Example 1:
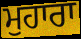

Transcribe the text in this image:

ਮੁਹਾਰਾ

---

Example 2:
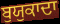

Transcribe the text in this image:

ਬੁਯੁਕਾਦਾ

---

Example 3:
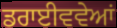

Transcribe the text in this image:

ਡਰਾਈਵਵੇਆਂ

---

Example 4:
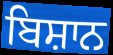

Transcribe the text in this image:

ਬਿਸ਼ਾਨ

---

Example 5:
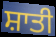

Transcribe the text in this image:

ਸ਼ਾਤੀ